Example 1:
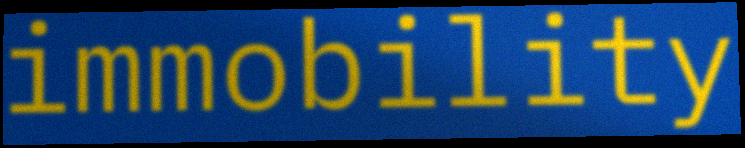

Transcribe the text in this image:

immobility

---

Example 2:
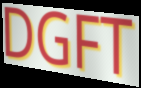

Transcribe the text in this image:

DGFT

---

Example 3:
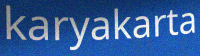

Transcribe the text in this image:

karyakarta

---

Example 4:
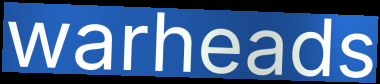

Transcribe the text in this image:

warheads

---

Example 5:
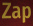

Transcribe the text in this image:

Zap